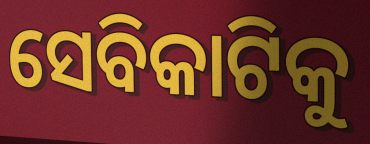
ସେବିକାଟିକୁ